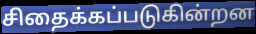
சிதைக்கப்படுகின்றன